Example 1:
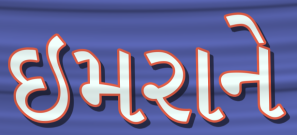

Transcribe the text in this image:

ઇમરાને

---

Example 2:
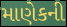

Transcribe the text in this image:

માણેકની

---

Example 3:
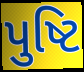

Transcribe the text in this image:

પુષ્ટિ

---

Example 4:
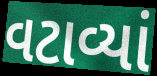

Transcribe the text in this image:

વટાવ્યાં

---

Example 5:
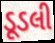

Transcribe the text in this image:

ડૂડલી